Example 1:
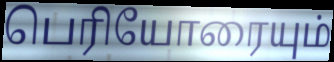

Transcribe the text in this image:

பெரியோரையும்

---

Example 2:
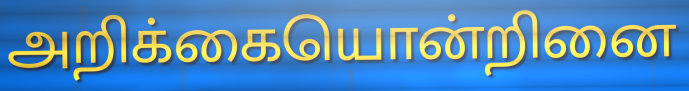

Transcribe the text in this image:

அறிக்கையொன்றினை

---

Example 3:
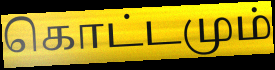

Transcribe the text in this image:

கொட்டமும்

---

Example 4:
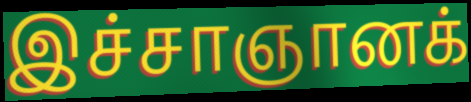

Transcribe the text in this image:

இச்சாஞானக்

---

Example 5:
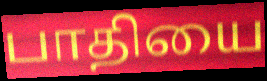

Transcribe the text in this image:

பாதியை